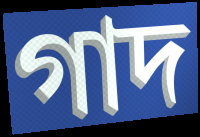
গাদ